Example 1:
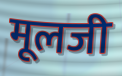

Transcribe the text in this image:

मूलजी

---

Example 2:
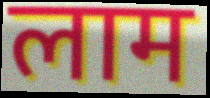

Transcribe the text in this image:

लाम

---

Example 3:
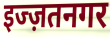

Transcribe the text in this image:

इज्ज़तनगर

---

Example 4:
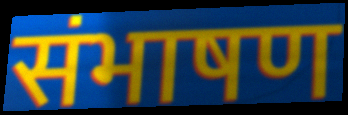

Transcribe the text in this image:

संभाषण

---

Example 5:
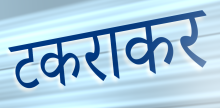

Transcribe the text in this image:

टकराकर